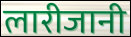
लारीजानी